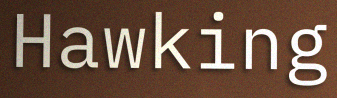
Hawking